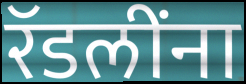
रॅडलींना